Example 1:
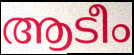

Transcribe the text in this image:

ആടീം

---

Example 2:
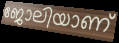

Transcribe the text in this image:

ജോലിയാണ്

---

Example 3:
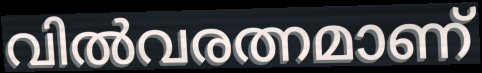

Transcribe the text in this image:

വിൽവരത്നമാണ്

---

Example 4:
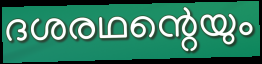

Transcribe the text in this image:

ദശരഥന്റെയും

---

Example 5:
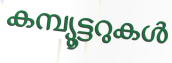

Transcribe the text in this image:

കമ്പ്യൂട്ടറുകൾ